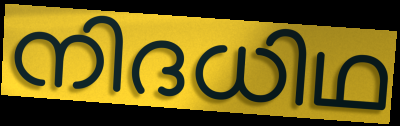
നിദധിഥ